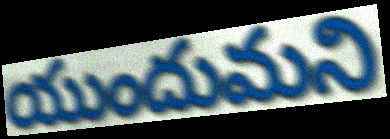
యుందుమని